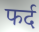
फर्द